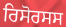
ਰਿਸੋਰਸਸ